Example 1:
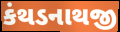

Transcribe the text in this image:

કંથડનાથજી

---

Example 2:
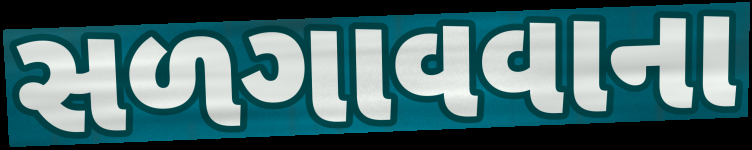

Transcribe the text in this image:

સળગાવવાના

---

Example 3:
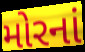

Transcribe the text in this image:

મોરનાં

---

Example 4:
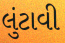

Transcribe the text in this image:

લુંટાવી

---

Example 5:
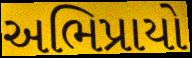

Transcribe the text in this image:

અભિપ્રાયો